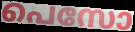
പെസോ